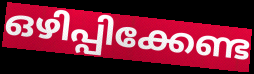
ഒഴിപ്പിക്കേണ്ട